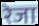
रेजा